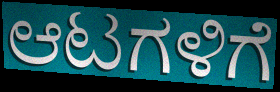
ಆಟಗಳಿಗೆ